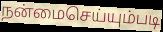
நன்மைசெய்யும்படி